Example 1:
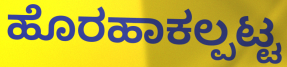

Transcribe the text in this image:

ಹೊರಹಾಕಲ್ಪಟ್ಟ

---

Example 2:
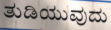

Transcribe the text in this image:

ತುಡಿಯುವುದು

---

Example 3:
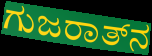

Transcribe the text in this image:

ಗುಜರಾತ್‌ನ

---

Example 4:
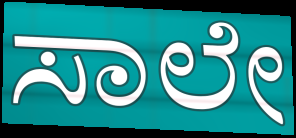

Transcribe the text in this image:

ಸಾಲೇ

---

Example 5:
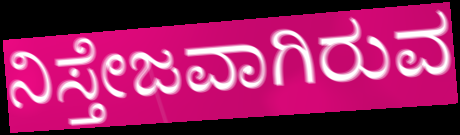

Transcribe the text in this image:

ನಿಸ್ತೇಜವಾಗಿರುವ